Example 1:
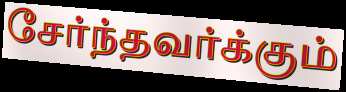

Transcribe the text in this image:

சேர்ந்தவர்க்கும்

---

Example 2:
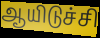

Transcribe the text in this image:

ஆயிடுச்சி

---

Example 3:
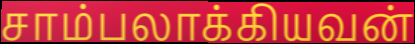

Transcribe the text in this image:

சாம்பலாக்கியவன்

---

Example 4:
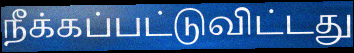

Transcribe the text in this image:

நீக்கப்பட்டுவிட்டது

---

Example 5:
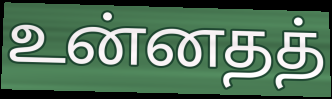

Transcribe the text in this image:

உன்னதத்